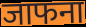
जाफना